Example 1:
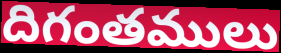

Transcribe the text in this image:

దిగంతములు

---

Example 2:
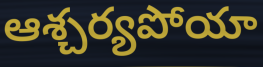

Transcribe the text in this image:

ఆశ్చర్యపోయా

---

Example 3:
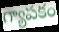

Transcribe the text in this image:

గ్యాపకం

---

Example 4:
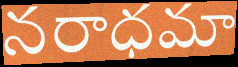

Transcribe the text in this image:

నరాధమా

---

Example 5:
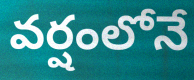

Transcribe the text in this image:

వర్షంలోనే